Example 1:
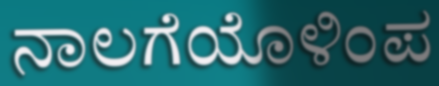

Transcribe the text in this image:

ನಾಲಗೆಯೊಳಿಂಪ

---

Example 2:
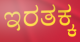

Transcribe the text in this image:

ಇರತಕ್ಕ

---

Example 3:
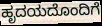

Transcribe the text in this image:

ಹೃದಯದೊಂದಿಗೆ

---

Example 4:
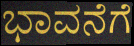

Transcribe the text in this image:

ಭಾವನೆಗೆ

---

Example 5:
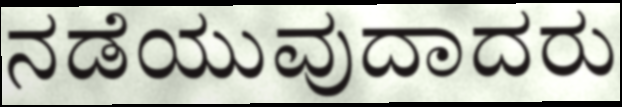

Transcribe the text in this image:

ನಡೆಯುವುದಾದರು